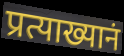
प्रत्याख्यानं